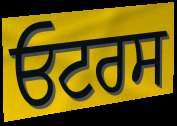
ਓਟਰਸ